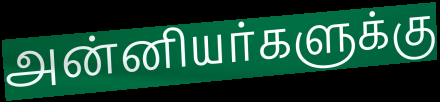
அன்னியர்களுக்கு